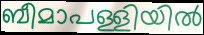
ബീമാപള്ളിയിൽ